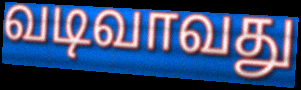
வடிவாவது